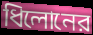
ধিলোনের